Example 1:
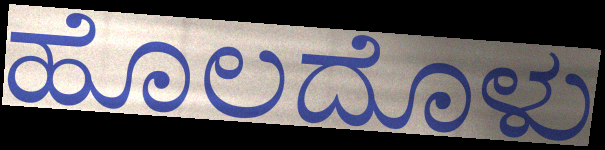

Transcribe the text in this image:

ಹೊಲದೊಳು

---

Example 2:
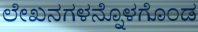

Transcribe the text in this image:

ಲೇಖನಗಳನ್ನೊಳಗೊಂಡ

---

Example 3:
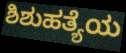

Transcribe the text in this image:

ಶಿಶುಹತ್ಯೆಯ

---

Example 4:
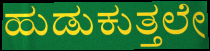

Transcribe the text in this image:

ಹುಡುಕುತ್ತಲೇ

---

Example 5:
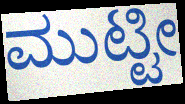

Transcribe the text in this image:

ಮುಟ್ಟೀ